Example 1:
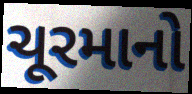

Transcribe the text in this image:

ચૂરમાનો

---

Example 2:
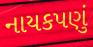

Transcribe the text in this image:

નાયકપણું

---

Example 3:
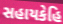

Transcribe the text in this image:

સહાયકેહિ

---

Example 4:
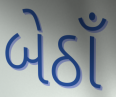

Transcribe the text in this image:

બેઠાઁ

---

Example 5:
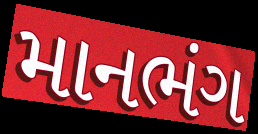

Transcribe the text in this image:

માનભંગ